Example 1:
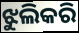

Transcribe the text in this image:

ଝୁଲିକରି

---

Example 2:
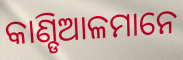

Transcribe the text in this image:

କାଣ୍ଡିଆଳମାନେ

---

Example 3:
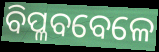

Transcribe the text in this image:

ବିପ୍ଳବବେଳେ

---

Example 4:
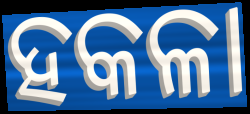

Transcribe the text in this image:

ହକଳା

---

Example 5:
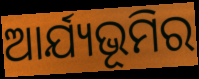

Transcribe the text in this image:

ଆର୍ଯ୍ୟଭୂମିର